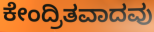
ಕೇಂದ್ರಿತವಾದವು